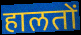
हालतों